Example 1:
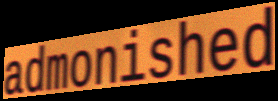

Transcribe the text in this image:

admonished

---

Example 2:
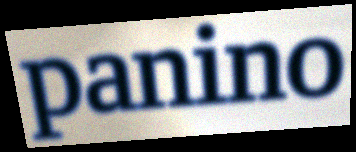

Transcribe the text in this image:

panino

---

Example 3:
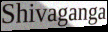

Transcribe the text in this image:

Shivaganga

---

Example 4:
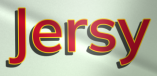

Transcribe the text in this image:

Jersy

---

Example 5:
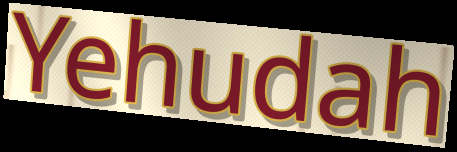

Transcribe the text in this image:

Yehudah